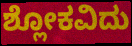
ಶ್ಲೋಕವಿದು